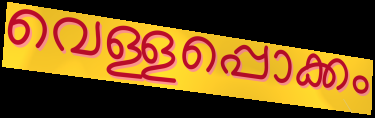
വെള്ളപ്പൊക്കം